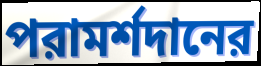
পরামর্শদানের